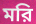
মরি